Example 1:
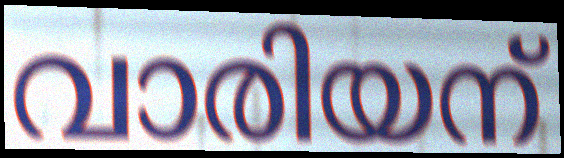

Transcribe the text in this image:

വാരിയന്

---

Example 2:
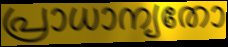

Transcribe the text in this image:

പ്രാധാന്യതോ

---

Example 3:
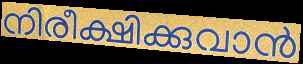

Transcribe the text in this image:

നിരീക്ഷിക്കുവാൻ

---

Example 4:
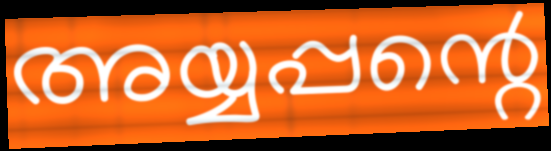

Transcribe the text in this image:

അയ്യപ്പന്റെ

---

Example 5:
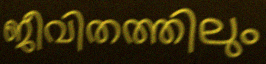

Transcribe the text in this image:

ജീവിതത്തിലും